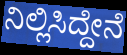
ನಿಲ್ಲಿಸಿದ್ದೇನೆ